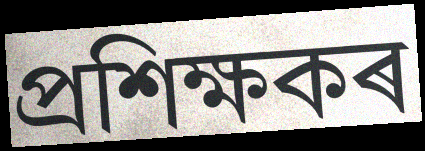
প্ৰশিক্ষকৰ